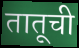
तातूची